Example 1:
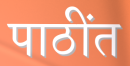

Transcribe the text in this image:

पाठींत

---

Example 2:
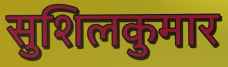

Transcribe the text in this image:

सुशिलकुमार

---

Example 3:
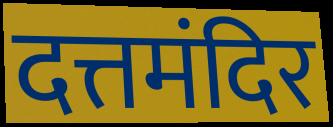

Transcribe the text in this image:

दत्तमंदिर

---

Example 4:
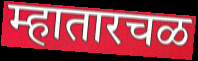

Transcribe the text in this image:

म्हातारचळ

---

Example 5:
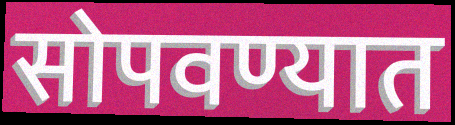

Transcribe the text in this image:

सोपवण्यात